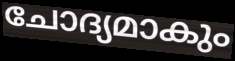
ചോദ്യമാകും